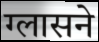
ग्लासने